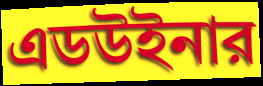
এডউইনার